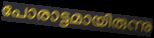
പോരാട്ടമായിരുന്നു